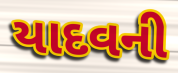
યાદવની